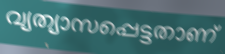
വ്യത്യാസപ്പെട്ടതാണ്